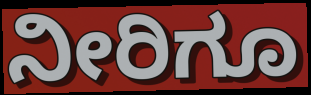
ನೀರಿಗೂ